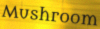
Mushroom